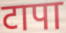
टापा